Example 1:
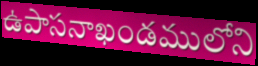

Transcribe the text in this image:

ఉపాసనాఖండములోని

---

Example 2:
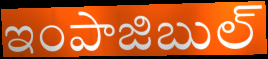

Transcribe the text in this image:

ఇంపాజిబుల్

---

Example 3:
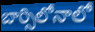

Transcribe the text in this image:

బార్సిలోనాలో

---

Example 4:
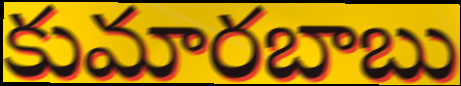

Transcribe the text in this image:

కుమారబాబు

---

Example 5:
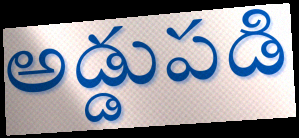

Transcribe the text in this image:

అడ్డుపడి